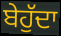
ਬੇਹੁੱਦਾ